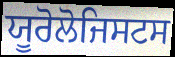
ਯੂਰੋਲੋਜਿਸਟਸ